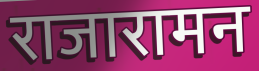
राजारामन